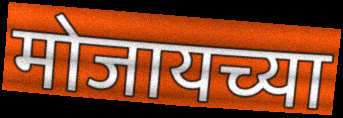
मोजायच्या